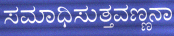
ಸಮಾಧಿಸುತ್ತವಣ್ಣನಾ